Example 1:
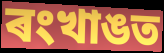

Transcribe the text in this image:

ৰংখাঙত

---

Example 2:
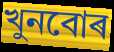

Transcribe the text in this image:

খুনবোৰ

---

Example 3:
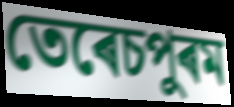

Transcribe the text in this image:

তেৰেচপুৰম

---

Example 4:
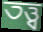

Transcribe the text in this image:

তত্ত্ব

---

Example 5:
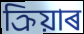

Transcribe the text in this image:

ক্ৰিয়াৰ